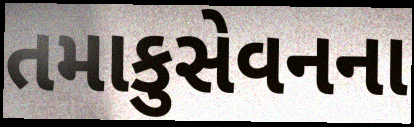
તમાકુસેવનના